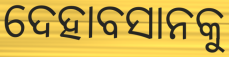
ଦେହାବସାନକୁ